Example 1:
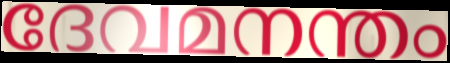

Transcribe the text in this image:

ദേവമനന്തം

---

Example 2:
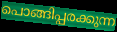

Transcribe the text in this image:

പൊങ്ങിപ്പരക്കുന്ന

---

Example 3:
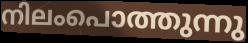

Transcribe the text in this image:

നിലംപൊത്തുന്നു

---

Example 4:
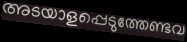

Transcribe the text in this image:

അടയാളപ്പെടുത്തേണ്ടവ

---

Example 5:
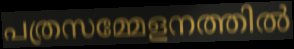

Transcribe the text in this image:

പത്രസമ്മേളനത്തിൽ